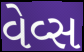
વેવ્સ